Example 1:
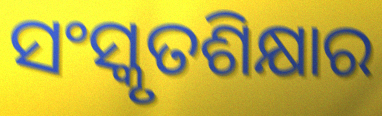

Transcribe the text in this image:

ସଂସ୍କୃତଶିକ୍ଷାର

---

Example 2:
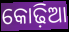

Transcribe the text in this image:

କୋଢ଼ିଆ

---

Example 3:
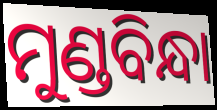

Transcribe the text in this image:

ମୁଣ୍ଡବିନ୍ଧା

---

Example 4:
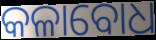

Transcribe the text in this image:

କଳାବୋଧ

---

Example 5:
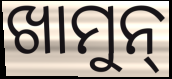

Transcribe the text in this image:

ଖାମୁନ୍